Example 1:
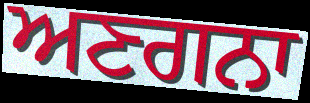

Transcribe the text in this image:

ਅਣਗਨਾ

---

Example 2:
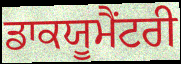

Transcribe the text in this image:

ਡਾਕਯੂਮੈਂਟਰੀ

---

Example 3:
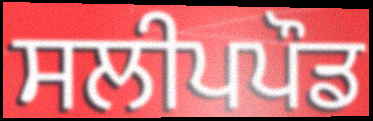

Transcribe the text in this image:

ਸਲੀਪਪੌਡ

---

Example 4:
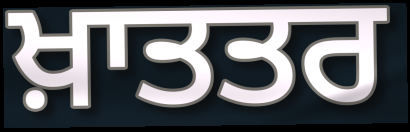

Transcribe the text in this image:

ਖ਼ਾਤਤਰ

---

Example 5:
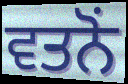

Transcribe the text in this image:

ਵਤਨੋਂ